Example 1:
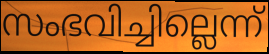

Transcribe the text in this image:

സംഭവിച്ചില്ലെന്ന്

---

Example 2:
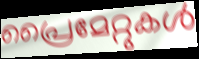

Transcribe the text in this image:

പ്രൈമേറ്റുകൾ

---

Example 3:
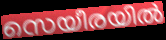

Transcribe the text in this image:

സെയീരയിൽ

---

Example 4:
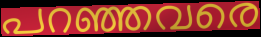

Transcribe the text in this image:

പറഞ്ഞവരെ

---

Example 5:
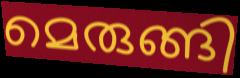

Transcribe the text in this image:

മെരുങ്ങി